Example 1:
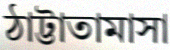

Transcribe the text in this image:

ঠাট্টাতামাসা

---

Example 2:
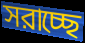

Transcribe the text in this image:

সরাচ্ছে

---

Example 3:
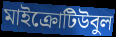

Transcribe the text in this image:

মাইক্রোটিউবুল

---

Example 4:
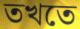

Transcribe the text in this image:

তখতে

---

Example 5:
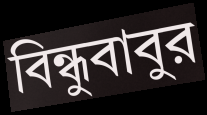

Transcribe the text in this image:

বিন্ধুবাবুর